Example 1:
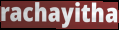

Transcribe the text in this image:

rachayitha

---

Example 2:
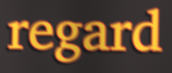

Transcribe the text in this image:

regard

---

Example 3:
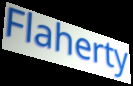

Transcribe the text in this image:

Flaherty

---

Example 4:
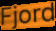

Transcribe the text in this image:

Fjord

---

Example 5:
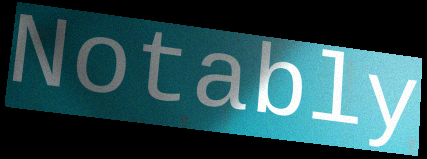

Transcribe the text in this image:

Notably